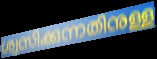
ശ്വസിക്കുന്നതിനുള്ള